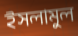
ইসলামুল